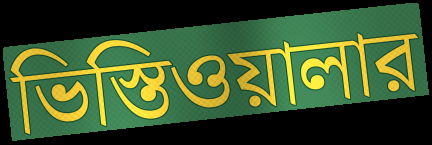
ভিস্তিওয়ালার